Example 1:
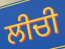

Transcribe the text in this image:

ਲੀਚੀ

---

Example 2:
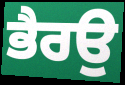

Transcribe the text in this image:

ਭੈਰਉ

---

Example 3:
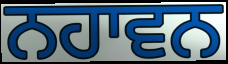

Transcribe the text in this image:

ਨਹਾਵਨ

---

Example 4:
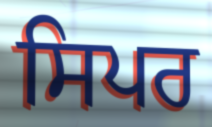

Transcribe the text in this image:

ਸਿਪਰ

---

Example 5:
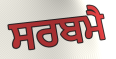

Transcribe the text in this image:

ਸਰਬਮੈ